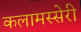
कलामस्सेरी